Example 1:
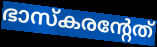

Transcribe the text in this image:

ഭാസ്കരന്റേത്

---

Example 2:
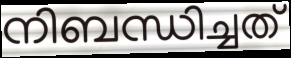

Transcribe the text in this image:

നിബന്ധിച്ചത്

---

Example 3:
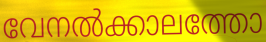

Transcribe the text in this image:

വേനൽക്കാലത്തോ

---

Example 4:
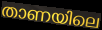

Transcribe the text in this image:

താണയിലെ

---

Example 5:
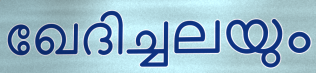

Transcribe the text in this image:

ഖേദിച്ചലയും